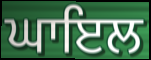
ਘਾਇਲ